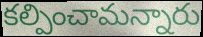
కల్పించామన్నారు